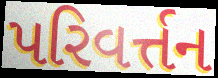
પરિવર્ત્તન